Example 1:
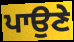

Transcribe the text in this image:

ਪਾਉਣੇ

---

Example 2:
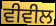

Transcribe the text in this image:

ਵੀਵੀਲ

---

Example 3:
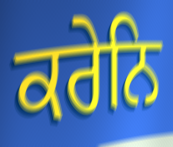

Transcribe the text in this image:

ਕਰੇਨਿ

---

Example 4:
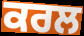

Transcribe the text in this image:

ਕਰਲ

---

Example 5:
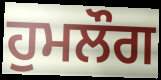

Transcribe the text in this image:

ਹੁਮਲੌਗ